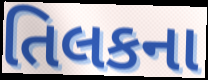
તિલકના